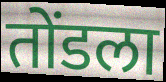
तोंडला